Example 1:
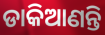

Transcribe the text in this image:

ଡାକିଆଣନ୍ତି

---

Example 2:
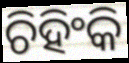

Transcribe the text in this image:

ଚିହିଂକି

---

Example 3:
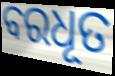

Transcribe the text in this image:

ବରଧୂତ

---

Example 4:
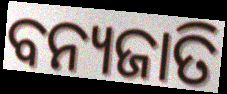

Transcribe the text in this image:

ବନ୍ୟଜାତି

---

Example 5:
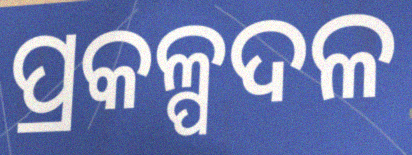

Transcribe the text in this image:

ପ୍ରକଳ୍ପଦଳ